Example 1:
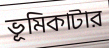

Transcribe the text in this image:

ভূমিকাটার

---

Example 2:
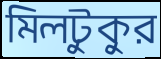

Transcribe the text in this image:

মিলটুকুর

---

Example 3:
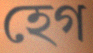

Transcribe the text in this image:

হেগ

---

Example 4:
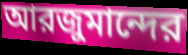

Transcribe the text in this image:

আরজুমান্দের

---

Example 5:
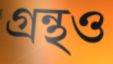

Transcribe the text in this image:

গ্রন্থও